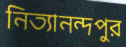
নিত্যানন্দপুর